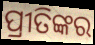
ପ୍ରୀତିଙ୍କର